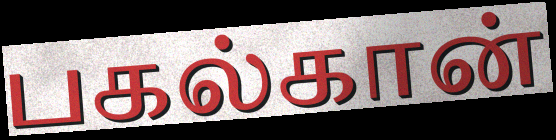
பகல்கான்